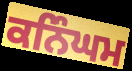
ਕਨਿੰਘਮ